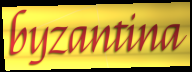
byzantina